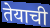
तेयाची